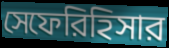
সেফেরিহিসার